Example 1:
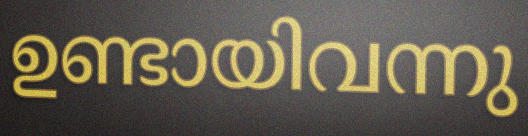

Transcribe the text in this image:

ഉണ്ടായിവന്നു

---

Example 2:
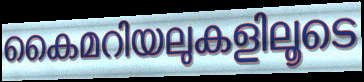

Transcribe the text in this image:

കൈമറിയലുകളിലൂടെ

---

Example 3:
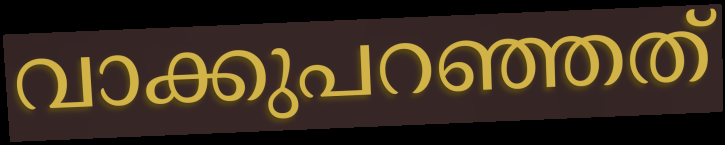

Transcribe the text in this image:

വാക്കുപറഞ്ഞത്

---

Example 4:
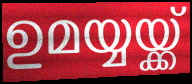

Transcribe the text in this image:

ഉമയ്യയ്ക്ക്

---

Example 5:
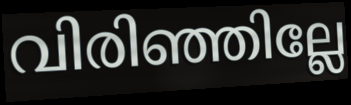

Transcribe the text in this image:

വിരിഞ്ഞില്ലേ